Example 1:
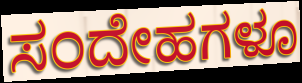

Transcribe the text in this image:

ಸಂದೇಹಗಳೂ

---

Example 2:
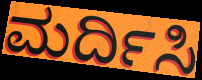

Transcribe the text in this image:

ಮರ್ದಿಸಿ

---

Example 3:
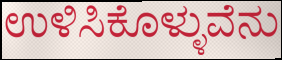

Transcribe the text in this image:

ಉಳಿಸಿಕೊಳ್ಳುವೆನು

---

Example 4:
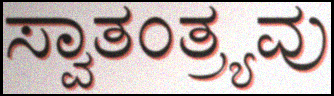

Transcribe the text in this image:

ಸ್ವಾತಂತ್ರ್ಯವು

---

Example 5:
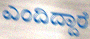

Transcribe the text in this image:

ಎಂದಿದ್ದಾರೆ